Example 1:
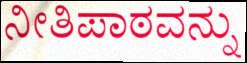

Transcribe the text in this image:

ನೀತಿಪಾಠವನ್ನು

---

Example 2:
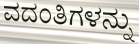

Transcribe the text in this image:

ವದಂತಿಗಳನ್ನು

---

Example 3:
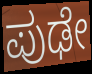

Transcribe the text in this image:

ಪುಢೇ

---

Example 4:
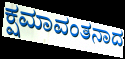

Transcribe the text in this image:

ಕ್ಷಮಾವಂತನಾದ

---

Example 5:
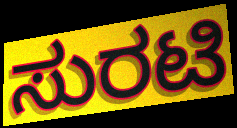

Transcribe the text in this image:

ಸುರಟಿ